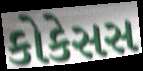
કોકેસસ